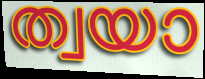
ത്വയാ